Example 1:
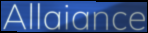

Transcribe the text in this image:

Allaiance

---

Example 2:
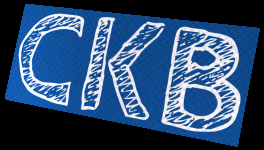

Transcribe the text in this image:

CKB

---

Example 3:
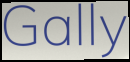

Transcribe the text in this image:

Gally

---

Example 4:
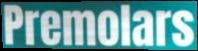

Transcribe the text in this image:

Premolars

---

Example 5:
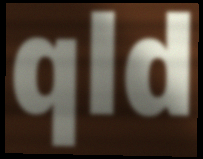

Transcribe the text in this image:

qld